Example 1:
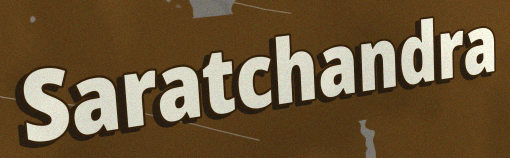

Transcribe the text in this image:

Saratchandra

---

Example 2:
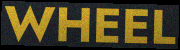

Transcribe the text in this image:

WHEEL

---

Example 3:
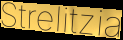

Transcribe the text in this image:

Strelitzia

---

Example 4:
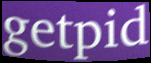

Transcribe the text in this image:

getpid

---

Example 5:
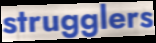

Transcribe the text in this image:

strugglers